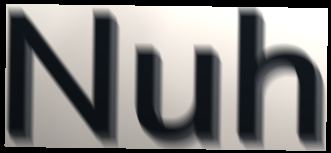
Nuh